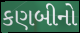
કણબીનો